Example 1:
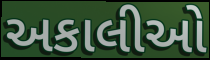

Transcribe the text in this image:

અકાલીઓ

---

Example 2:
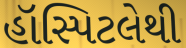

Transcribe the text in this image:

હૉસ્પિટલેથી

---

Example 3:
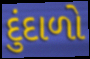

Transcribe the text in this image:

દુંદાળો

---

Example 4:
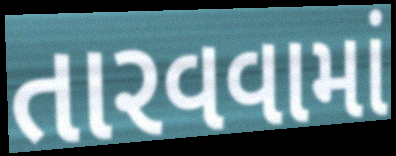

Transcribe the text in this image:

તારવવામાં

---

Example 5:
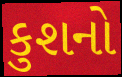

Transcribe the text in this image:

કુશનો